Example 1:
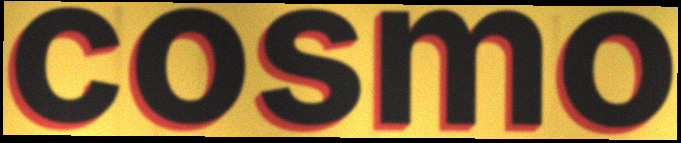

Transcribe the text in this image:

cosmo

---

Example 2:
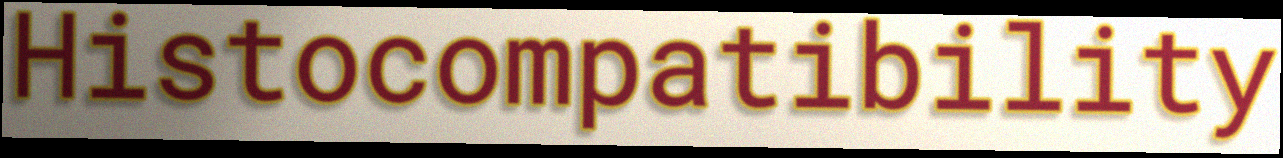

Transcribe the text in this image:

Histocompatibility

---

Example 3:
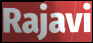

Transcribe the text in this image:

Rajavi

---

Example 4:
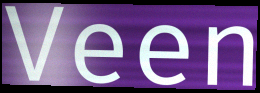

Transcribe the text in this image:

Veen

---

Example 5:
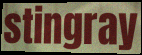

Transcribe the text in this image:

stingray